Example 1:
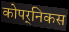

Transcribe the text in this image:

कोपर्निकस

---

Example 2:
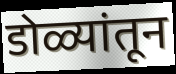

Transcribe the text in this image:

डोळ्यांतून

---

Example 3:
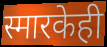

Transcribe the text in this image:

स्मारकेही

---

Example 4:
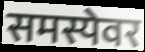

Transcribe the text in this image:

समस्येवर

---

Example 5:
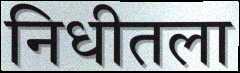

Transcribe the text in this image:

निधीतला